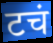
टचं